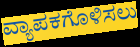
ವ್ಯಾಪಕಗೊಳಿಸಲು